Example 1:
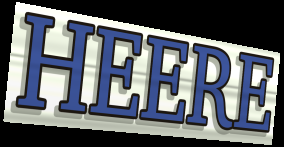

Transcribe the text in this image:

HEERE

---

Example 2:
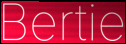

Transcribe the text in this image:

Bertie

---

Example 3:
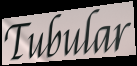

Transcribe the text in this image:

Tubular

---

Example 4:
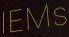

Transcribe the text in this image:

IEMs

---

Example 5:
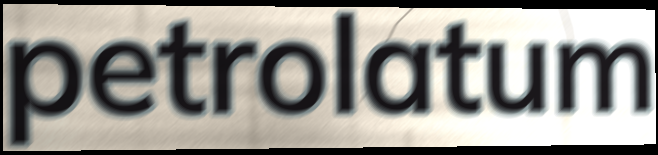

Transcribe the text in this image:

petrolatum